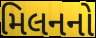
મિલનનો